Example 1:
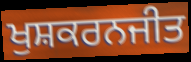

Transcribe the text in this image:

ਖੁਸ਼ਕਰਨਜੀਤ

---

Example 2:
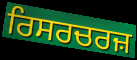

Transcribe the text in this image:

ਰਿਸਰਚਰਜ਼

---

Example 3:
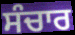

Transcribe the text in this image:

ਸੰਚਾਰ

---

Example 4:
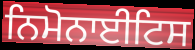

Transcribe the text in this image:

ਨਿਮੋਨਾਈਟਿਸ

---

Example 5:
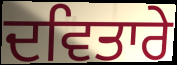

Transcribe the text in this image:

ਦਵਿਤਾਰੇ